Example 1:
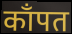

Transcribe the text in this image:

काँपत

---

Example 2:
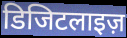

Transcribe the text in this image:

डिजिटलाइज़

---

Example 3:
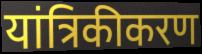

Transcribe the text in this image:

यांत्रिकीकरण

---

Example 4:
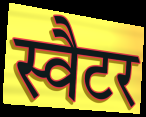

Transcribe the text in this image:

स्वैटर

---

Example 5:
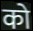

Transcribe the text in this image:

को